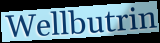
Wellbutrin